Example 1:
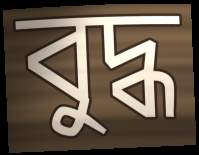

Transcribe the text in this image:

বুদ্ধ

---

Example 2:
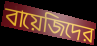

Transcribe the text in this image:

বায়েজিদের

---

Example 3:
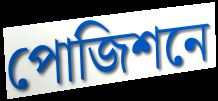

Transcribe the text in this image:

পোজিশনে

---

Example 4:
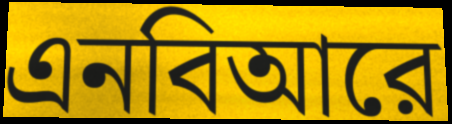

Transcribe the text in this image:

এনবিআরে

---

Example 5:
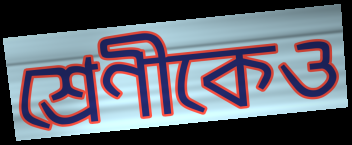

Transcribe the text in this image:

শ্রেণীকেও